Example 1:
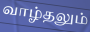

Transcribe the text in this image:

வாழ்தலும்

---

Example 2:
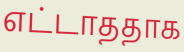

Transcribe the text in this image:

எட்டாததாக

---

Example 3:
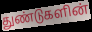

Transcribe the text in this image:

துண்டுகளின்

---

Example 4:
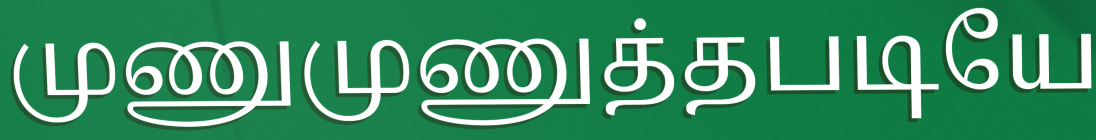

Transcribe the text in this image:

முணுமுணுத்தபடியே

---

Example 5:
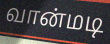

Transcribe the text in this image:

வான்மடி